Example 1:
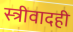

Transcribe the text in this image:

स्त्रीवादही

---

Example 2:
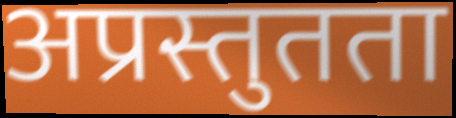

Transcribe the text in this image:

अप्रस्तुतता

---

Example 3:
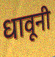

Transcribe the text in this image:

धावूनी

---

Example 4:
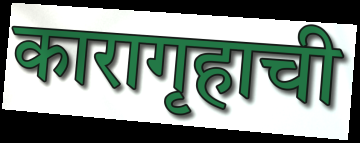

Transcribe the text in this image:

कारागृहाची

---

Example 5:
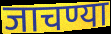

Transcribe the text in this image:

जाचण्या